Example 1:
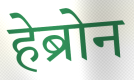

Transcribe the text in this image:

हेब्रोन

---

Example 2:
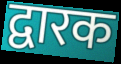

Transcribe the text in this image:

द्वारक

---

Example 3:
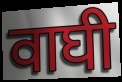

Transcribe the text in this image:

वाघी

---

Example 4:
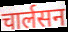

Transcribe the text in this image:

चार्लसन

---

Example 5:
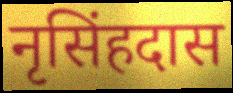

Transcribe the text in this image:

नृसिंहदास